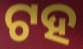
ଟହ